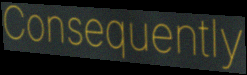
Consequently